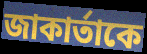
জাকার্তাকে